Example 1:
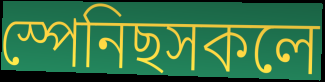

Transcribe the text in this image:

স্পেনিছসকলে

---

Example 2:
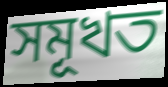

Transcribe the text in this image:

সমূখত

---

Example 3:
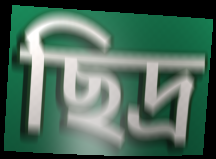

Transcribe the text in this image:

ছিদ্ৰ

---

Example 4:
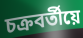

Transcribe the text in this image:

চক্ৰবৰ্তীয়ে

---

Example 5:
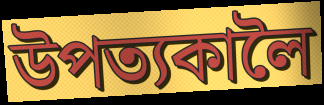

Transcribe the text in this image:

উপত্যকালৈ